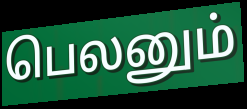
பெலனும்